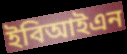
ইবিআইএন